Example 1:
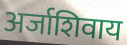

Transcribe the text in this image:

अर्जाशिवाय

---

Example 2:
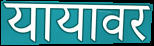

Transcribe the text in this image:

यायावर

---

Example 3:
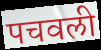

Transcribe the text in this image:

पचवली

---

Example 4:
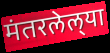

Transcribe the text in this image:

मंतरलेल्या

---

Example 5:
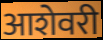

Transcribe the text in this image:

आशेवरी